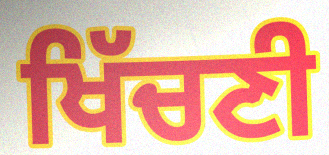
ਖਿੱਚਣੀ